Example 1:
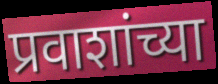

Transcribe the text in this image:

प्रवाशांच्या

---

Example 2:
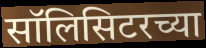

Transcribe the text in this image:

सॉलिसिटरच्या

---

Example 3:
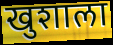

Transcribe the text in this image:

खुशाला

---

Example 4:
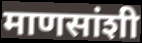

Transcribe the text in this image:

माणसांशी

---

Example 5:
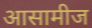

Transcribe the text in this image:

आसामीज